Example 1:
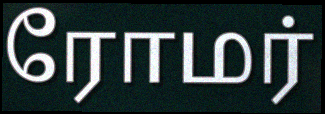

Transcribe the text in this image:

ரோமர்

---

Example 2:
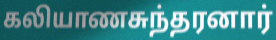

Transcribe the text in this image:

கலியாணசுந்தரனார்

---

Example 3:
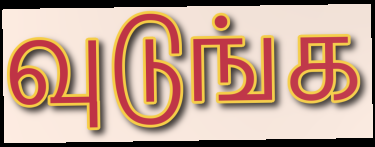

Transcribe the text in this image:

வுடுங்க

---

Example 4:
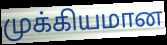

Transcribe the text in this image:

முக்கியமான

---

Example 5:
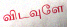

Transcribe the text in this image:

விடவுளே